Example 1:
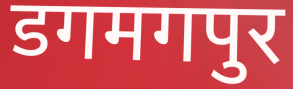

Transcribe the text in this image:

डगमगपुर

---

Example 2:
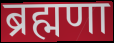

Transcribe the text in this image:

ब्रह्मणा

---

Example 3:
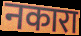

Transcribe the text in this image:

नकारा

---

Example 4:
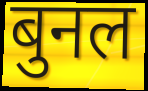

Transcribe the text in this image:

बुनल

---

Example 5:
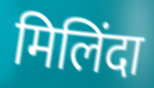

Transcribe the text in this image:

मिलिंदा